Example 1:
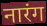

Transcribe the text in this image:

नारंग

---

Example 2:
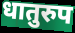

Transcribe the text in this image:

धातुरुप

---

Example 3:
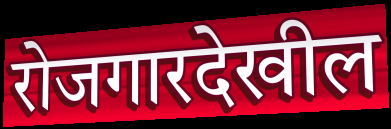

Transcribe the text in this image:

रोजगारदेखील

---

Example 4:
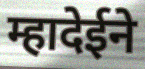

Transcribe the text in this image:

म्हादेईने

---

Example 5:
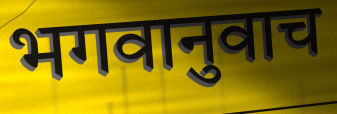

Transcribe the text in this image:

भगवानुवाच